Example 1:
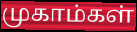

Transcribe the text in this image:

முகாம்கள்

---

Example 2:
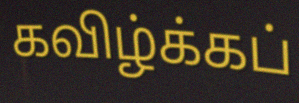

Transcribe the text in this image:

கவிழ்க்கப்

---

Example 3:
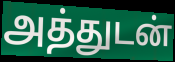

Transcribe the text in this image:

அத்துடன்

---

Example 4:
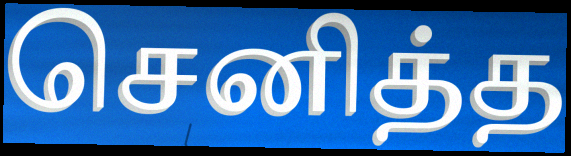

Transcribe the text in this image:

செனித்த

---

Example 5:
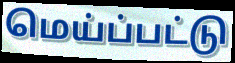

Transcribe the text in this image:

மெய்ப்பட்டு